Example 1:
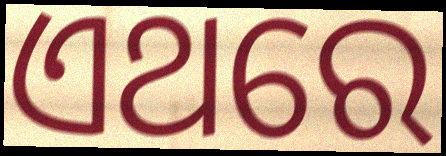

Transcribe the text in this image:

ଏଥରେ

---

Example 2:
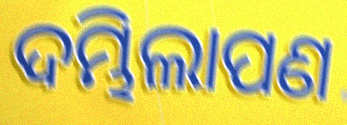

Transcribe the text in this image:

ଦମ୍ଭିଲାପଣ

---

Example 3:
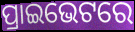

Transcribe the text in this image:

ପ୍ରାଇଭେଟରେ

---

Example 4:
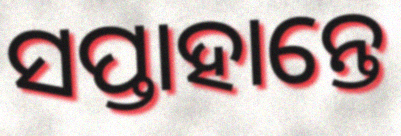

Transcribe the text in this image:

ସପ୍ତାହାନ୍ତେ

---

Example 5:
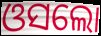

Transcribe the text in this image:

ଓସଲୋ